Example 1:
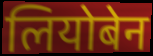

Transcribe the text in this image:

लियोबेन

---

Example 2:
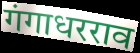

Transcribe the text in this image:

गंगाधरराव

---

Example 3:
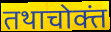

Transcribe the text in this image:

तथाचोक्तं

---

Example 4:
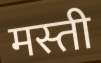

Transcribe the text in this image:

मस्‍ती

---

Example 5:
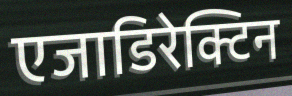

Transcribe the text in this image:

एजाडिरेक्टिन